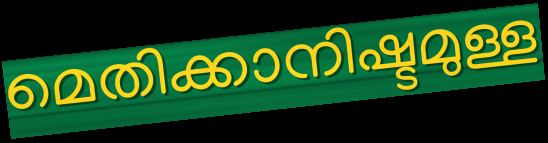
മെതിക്കാനിഷ്ടമുള്ള